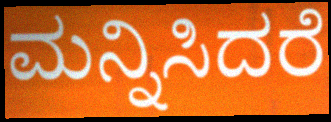
ಮನ್ನಿಸಿದರೆ